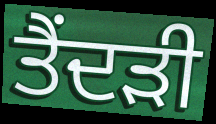
ਤੈਂਦੜੀ